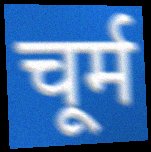
चूर्म